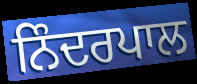
ਨਿੰਦਰਪਾਲ